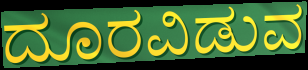
ದೂರವಿಡುವ